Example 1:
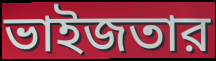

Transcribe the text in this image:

ভাইজতার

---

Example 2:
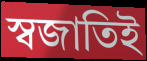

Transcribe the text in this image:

স্বজাতিই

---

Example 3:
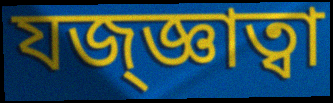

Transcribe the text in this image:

যজ্জ্ঞাত্বা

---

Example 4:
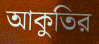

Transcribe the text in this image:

আকুতির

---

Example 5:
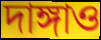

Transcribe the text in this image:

দাঙ্গাও